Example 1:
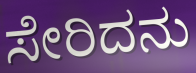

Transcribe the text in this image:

ಸೇರಿದನು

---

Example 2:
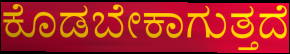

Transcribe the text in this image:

ಕೊಡಬೇಕಾಗುತ್ತದೆ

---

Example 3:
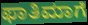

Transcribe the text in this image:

ಫಾತಿಮಾಗೆ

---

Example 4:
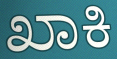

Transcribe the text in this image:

ಖಾಕಿ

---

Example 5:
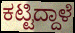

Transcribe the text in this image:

ಕಟ್ಟಿದ್ದಾಳೆ